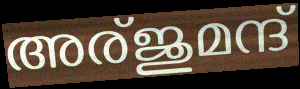
അര്ജുമന്ദ്